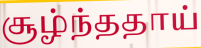
சூழ்ந்ததாய்